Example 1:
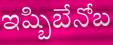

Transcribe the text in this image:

ఇష్బిబేనోబ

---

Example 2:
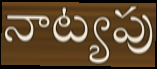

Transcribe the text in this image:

నాట్యపు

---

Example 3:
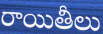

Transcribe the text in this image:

రాయితీలు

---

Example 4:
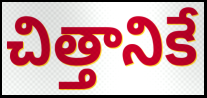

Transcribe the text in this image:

చిత్తానికే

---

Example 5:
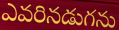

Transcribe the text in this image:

ఎవరినడుగను